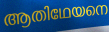
ആതിഥേയനെ